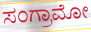
ಸಂಗ್ರಾಮೋ